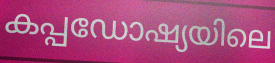
കപ്പഡോഷ്യയിലെ